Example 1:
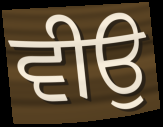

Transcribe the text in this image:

ਵੀਉ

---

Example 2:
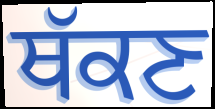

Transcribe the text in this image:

ਥੱਕਣ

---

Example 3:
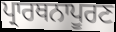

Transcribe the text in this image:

ਪ੍ਰਾਰਥਨਾਪੂਰਣ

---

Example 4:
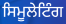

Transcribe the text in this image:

ਸਿਮੂਲੇਟਿੰਗ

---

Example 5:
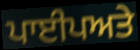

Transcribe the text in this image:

ਪਾਈਪਅਤੇ